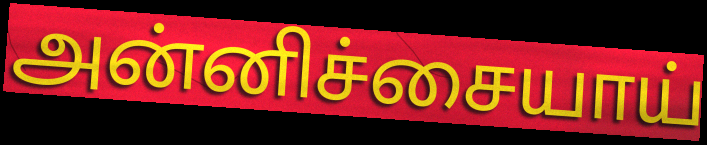
அன்னிச்சையாய்